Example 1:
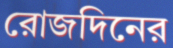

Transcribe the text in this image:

রোজদিনের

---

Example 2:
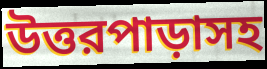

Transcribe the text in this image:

উত্তরপাড়াসহ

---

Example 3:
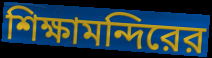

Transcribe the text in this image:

শিক্ষামন্দিরের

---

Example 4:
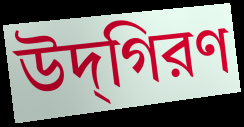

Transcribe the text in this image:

উদ্‌গিরণ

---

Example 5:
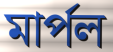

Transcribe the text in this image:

মার্পল